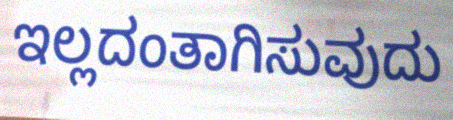
ಇಲ್ಲದಂತಾಗಿಸುವುದು